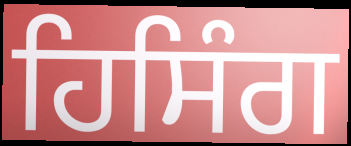
ਹਿਸਿੰਗ